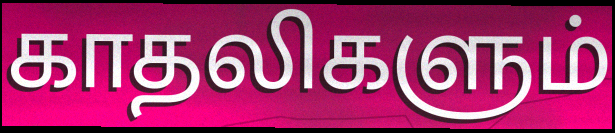
காதலிகளும்